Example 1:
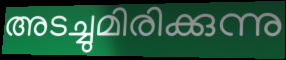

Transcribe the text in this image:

അടച്ചുമിരിക്കുന്നു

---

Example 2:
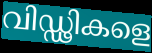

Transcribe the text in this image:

വിഡ്ഢികളെ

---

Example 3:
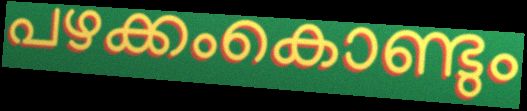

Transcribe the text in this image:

പഴക്കംകൊണ്ടും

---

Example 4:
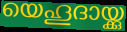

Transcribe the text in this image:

യെഹൂദായ്ക്കു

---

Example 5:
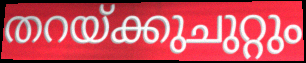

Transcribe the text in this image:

തറയ്ക്കുചുറ്റും